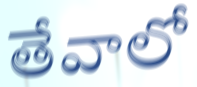
తేవాలో